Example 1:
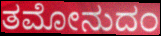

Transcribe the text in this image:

ತಮೋನುದಂ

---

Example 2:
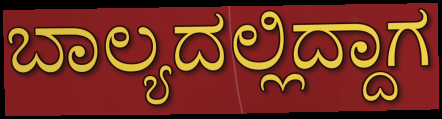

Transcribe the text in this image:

ಬಾಲ್ಯದಲ್ಲಿದ್ದಾಗ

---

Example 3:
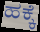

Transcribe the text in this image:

ಹಕ್ಕೆ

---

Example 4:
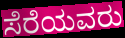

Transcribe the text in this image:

ಸೆರೆಯವರು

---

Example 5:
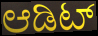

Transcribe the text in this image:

ಆಡಿಟ್